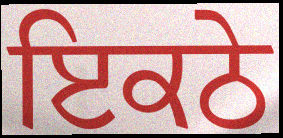
ਇਕਠੇ